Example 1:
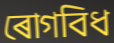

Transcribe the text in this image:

ৰোগবিধ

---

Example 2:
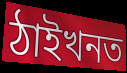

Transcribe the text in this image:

ঠাইখনত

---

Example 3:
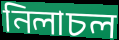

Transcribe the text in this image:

নিলাচল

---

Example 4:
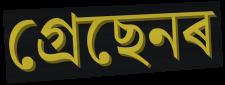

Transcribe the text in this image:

গ্ৰেছেনৰ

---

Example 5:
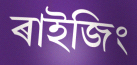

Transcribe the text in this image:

ৰাইজিং